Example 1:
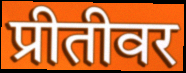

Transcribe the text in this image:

प्रीतीवर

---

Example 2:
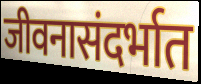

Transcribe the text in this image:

जीवनासंदर्भात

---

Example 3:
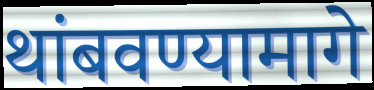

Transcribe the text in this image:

थांबवण्यामागे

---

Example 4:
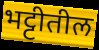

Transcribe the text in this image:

भट्टीतील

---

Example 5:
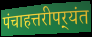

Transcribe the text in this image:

पंचाहत्तरीपर्यंत